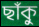
ছাঁকু